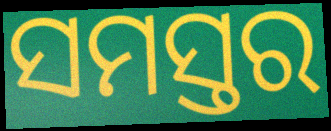
ସମସ୍ତର